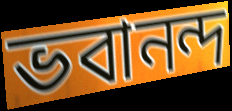
ভবানন্দ